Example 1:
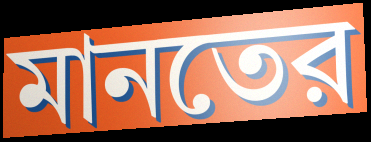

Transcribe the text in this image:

মানতের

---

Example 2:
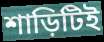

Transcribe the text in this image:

শাড়িটিই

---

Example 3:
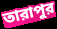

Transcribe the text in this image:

তারাপুর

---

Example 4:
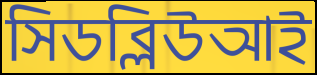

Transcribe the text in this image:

সিডব্লিউআই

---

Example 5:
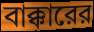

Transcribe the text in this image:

বাক্কারের